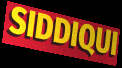
SIDDIQUI